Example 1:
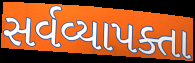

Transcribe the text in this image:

સર્વવ્યાપક્તા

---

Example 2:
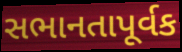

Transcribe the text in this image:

સભાનતાપૂર્વક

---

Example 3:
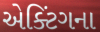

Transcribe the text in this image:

એક્ટિંગના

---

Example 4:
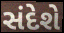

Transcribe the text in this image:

સંદેશે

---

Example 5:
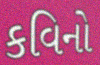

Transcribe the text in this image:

કવિનો